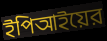
ইপিআইয়ের